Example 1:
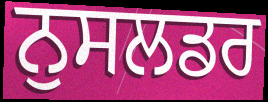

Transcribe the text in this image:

ਨੁਸਲਡਰ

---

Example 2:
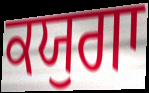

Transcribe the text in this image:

ਕਯੁਗਾ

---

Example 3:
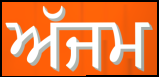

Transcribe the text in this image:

ਅੱਜਮ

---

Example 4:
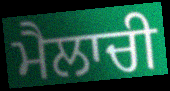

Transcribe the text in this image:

ਮੈਲਾਚੀ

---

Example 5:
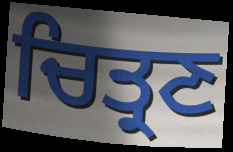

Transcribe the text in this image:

ਚਿਤ੍ਰਣ